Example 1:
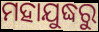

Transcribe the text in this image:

ମହାଯୁଦ୍ଧରୁ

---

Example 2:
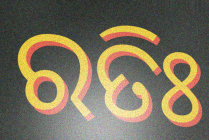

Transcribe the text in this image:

ରତିଃ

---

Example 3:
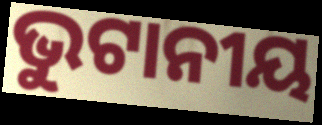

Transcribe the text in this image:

ଭୁଟାନୀୟ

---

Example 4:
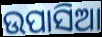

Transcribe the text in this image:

ଉପାସିଆ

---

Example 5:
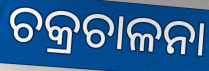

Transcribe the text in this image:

ଚକ୍ରଚାଳନା